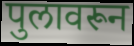
पुलावरून